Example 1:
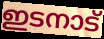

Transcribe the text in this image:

ഇടനാട്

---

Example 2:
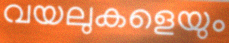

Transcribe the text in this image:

വയലുകളെയും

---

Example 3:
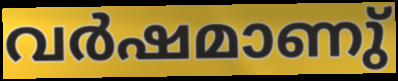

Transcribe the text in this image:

വർഷമാണു്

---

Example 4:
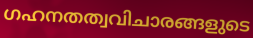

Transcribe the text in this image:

ഗഹനതത്വവിചാരങ്ങളുടെ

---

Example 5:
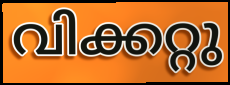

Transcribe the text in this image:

വിക്കറ്റു